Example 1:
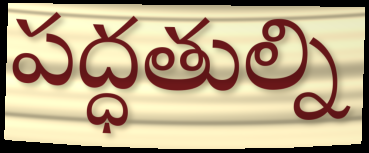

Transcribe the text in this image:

పద్ధతుల్ని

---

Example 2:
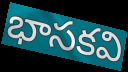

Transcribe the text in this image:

భాసకవి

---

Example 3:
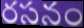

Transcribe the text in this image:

రసనం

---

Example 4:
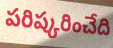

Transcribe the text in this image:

పరిష్కరించేది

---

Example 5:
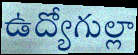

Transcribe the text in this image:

ఉద్యోగుల్లా